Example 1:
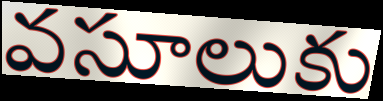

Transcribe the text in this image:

వసూలుకు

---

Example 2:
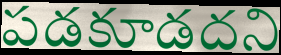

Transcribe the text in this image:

పడకూడదని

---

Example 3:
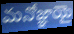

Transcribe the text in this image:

మనోజ్ఞాయై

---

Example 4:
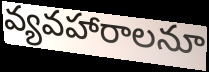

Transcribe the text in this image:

వ్యవహారాలనూ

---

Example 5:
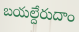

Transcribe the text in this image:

బయల్దేరుదాం